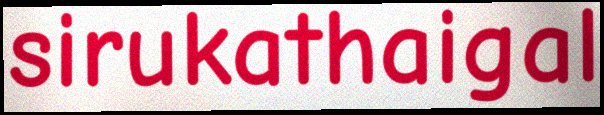
sirukathaigal